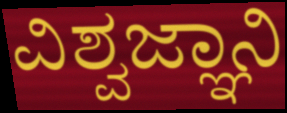
ವಿಶ್ವಜ್ಞಾನಿ